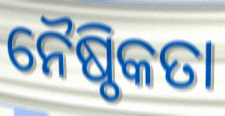
ନୈଷ୍ଠିକତା